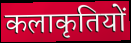
कलाकृतियों